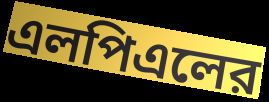
এলপিএলের